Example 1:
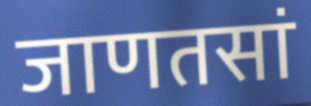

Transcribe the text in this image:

जाणतसां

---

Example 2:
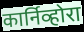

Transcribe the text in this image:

कार्निव्होरा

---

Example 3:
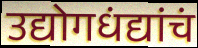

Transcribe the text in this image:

उद्योगधंद्यांचं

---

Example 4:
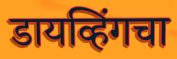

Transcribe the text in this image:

डायव्हिंगचा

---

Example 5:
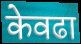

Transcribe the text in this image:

केवढा